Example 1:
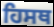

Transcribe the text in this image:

ਹਿਸਥ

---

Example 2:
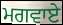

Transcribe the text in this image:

ਮਗਵਾਏ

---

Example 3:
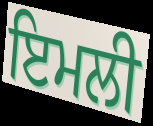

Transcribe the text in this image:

ਇਮਲੀ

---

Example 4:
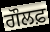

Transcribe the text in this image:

ਗੌਲਫ਼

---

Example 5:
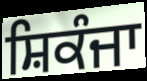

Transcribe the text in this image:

ਸ਼ਿਕੰਜਾ